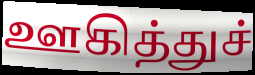
ஊகித்துச்